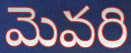
మెవరి